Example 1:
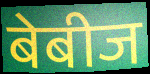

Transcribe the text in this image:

बेबीज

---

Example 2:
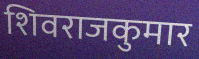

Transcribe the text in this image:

शिवराजकुमार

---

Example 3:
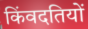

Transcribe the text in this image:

किंवदतियों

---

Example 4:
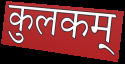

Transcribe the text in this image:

कुलकम्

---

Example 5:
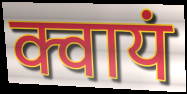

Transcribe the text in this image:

क्वायं